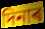
দিনাৰ